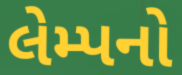
લેમ્પનો